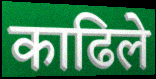
काढिले